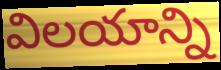
విలయాన్ని